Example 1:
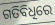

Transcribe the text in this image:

ଗତିବିଧିରେ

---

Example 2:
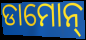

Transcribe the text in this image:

ଡାମୋନ୍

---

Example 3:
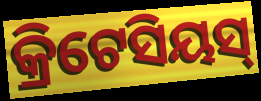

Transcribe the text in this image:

କ୍ରିଟେସିୟସ୍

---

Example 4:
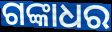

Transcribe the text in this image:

ଗଙ୍କାଧର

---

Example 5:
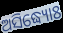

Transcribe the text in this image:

ଅସିଦ୍ଧ୍ୟୋଃ